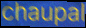
chaupal